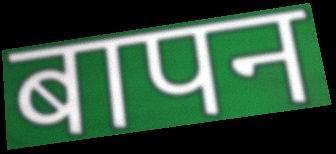
बापन